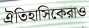
ঐতিহাসিকেরাও